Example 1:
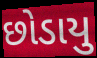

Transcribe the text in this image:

છોડાયુ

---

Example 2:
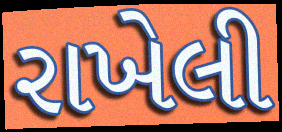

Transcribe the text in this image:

રાખેલી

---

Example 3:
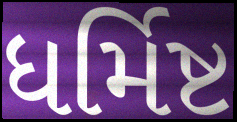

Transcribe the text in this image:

ધર્મિષ્ટ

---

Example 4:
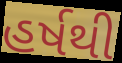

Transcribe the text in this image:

હર્ષથી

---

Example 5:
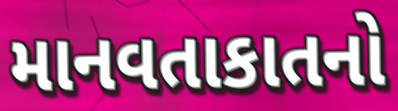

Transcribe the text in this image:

માનવતાકાતનો